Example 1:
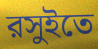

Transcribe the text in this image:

রসুইতে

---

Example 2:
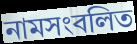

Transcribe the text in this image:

নামসংবলিত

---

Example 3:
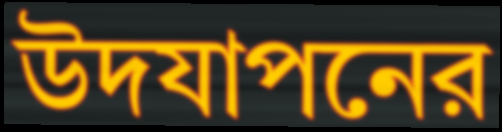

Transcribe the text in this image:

উদযাপনের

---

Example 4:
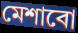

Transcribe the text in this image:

মেশাবো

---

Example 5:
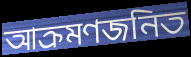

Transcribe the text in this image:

আক্রমণজনিত